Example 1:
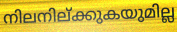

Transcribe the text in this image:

നിലനില്ക്കുകയുമില്ല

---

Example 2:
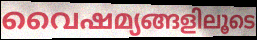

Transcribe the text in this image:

വൈഷമ്യങ്ങളിലൂടെ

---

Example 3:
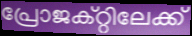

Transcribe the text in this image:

പ്രോജക്റ്റിലേക്ക്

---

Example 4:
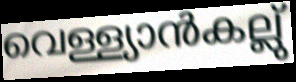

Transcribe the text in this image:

വെള്ള്യാൻകല്ലു്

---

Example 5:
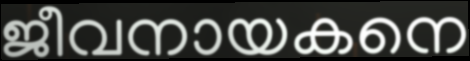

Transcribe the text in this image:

ജീവനായകനെ